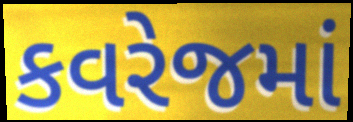
કવરેજમાં